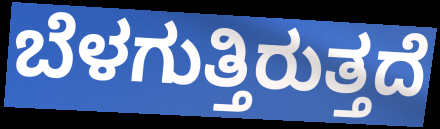
ಬೆಳಗುತ್ತಿರುತ್ತದೆ